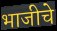
भाजीचे